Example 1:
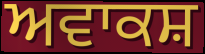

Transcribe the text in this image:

ਅਵਾਕਸ਼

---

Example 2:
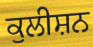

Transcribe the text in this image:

ਕੁਲੀਸ਼ਨ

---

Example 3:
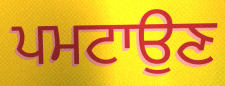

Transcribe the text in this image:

ਪਮਟਾਉਣ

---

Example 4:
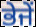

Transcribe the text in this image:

ਭੇਜੇਂ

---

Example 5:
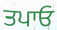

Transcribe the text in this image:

ਤਪਾਓ